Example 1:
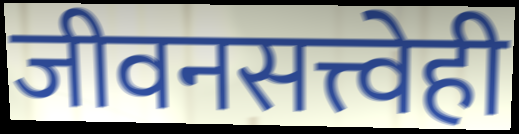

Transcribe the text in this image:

जीवनसत्त्वेही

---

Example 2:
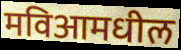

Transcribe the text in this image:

मविआमधील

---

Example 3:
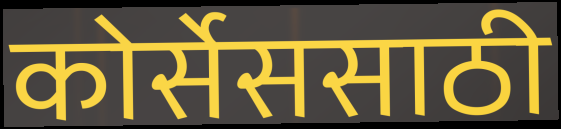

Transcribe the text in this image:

कोर्सेससाठी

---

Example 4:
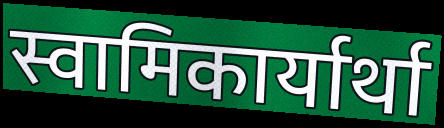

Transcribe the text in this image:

स्वामिकार्यार्था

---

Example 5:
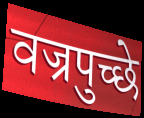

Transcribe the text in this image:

वज्रपुच्छे